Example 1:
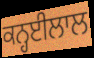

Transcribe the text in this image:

ਕਨ੍ਹਈਲਾਲ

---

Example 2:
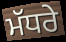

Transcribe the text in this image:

ਮੱਧਰੇ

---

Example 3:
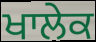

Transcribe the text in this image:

ਖਾਲੇਕ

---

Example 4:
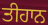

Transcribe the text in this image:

ਤੀਹਾਨ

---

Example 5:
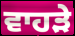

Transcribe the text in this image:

ਵਾਹੜੇ